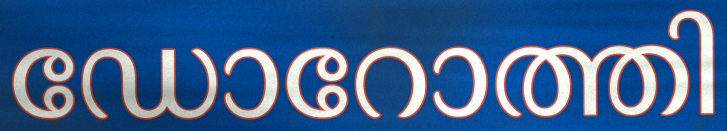
ഡോറോത്തി